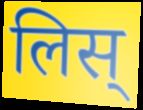
लिस्